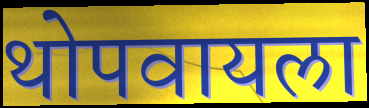
थोपवायला